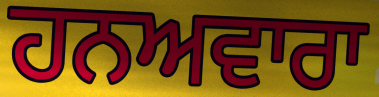
ਹਨਅਵਾਰਾ